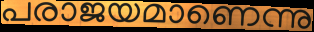
പരാജയമാണെന്നു